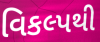
વિકલ્પથી